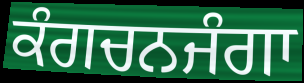
ਕੰਗਚਨਜੰਗਾ